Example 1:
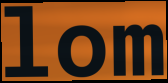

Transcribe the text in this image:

lom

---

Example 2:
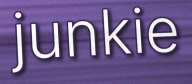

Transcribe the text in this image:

junkie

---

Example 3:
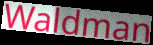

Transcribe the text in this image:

Waldman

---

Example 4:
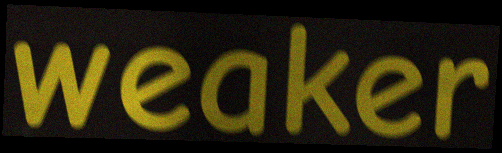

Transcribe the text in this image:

weaker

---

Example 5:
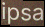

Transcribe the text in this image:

ipsa